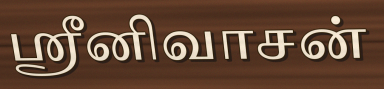
ஸ்ரீனிவாசன்